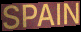
SPAIN